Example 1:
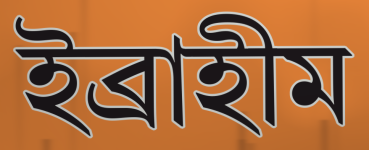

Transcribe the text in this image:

ইব্রাহীম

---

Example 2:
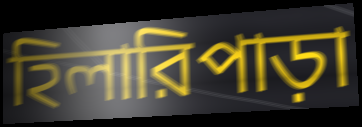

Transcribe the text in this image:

হিলারিপাড়া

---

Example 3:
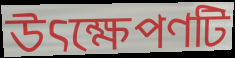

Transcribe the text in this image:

উৎক্ষেপণটি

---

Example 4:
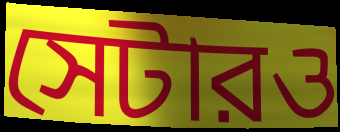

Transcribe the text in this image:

সেটারও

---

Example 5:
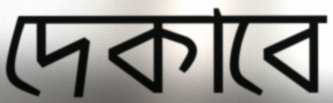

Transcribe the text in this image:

দেকাবে